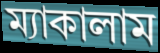
ম্যাকালাম